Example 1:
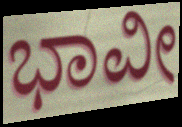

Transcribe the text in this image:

ಭಾವೀ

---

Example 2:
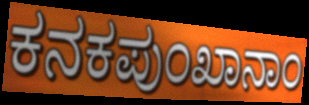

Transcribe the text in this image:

ಕನಕಪುಂಖಾನಾಂ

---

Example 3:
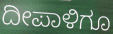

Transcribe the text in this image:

ದೀಪಾಳಿಗೂ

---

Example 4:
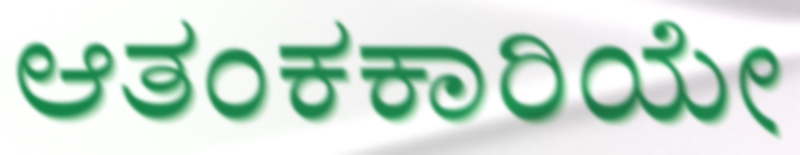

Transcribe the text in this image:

ಆತಂಕಕಾರಿಯೇ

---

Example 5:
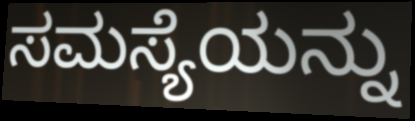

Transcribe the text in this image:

ಸಮಸ್ಯೆಯನ್ನು